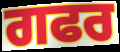
ਗਫਰ